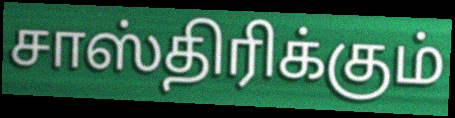
சாஸ்திரிக்கும்